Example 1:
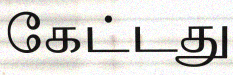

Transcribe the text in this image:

கேட்டது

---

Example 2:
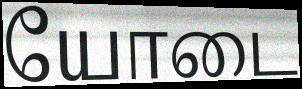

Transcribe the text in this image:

யோடை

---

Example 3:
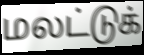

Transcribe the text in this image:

மலட்டுக்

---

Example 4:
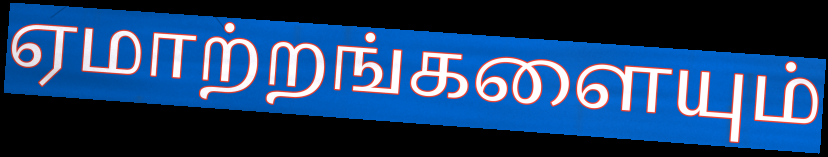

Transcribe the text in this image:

ஏமாற்றங்களையும்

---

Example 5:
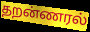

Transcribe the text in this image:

தறன்ணரல்